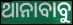
ଥାନାବାବୁ